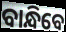
ବାନ୍ଧିବେ